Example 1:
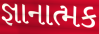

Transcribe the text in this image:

જ્ઞાનાત્મક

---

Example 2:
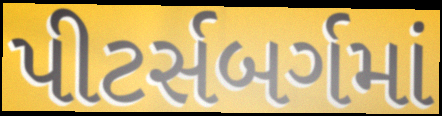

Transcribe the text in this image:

પીટર્સબર્ગમાં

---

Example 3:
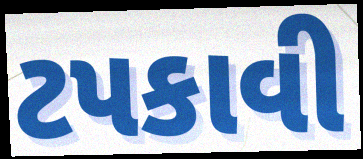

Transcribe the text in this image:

ટપકાવી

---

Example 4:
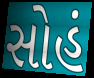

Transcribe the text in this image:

સોહં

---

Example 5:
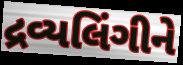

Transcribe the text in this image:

દ્રવ્યલિંગીને